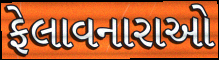
ફેલાવનારાઓ